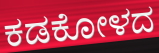
ಕಡಕೋಳದ